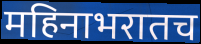
महिनाभरातच